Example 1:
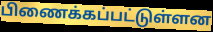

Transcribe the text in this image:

பிணைக்கப்பட்டுள்ளன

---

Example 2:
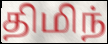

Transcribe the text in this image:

திமிந்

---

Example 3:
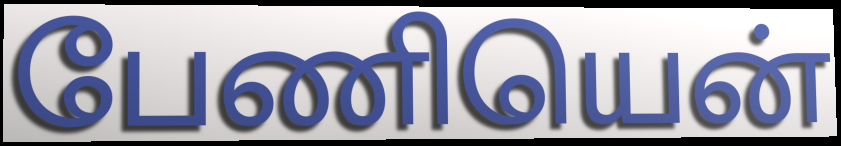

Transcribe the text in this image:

பேணியென்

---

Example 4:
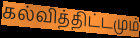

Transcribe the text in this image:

கல்வித்திட்டமும்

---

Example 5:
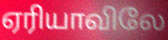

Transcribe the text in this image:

ஏரியாவிலே